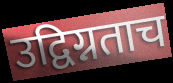
उद्विग्नताच